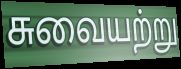
சுவையற்று